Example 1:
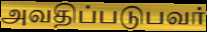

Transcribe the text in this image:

அவதிப்படுபவர்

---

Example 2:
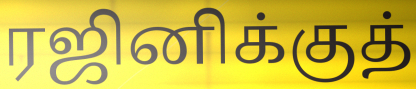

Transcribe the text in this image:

ரஜினிக்குத்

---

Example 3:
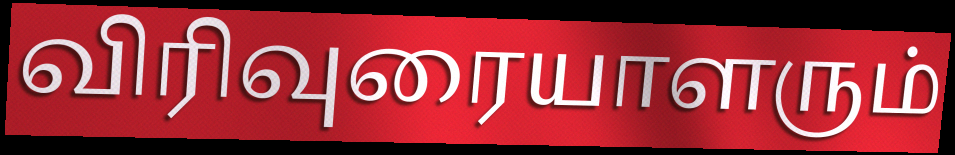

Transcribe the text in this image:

விரிவுரையாளரும்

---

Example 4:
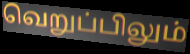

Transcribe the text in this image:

வெறுப்பிலும்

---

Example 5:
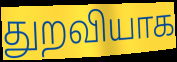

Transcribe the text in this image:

துறவியாக